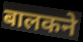
बालकने